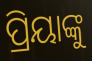
ପ୍ରିୟାଙ୍କୁ